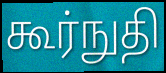
கூர்நுதி